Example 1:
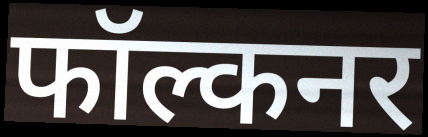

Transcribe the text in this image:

फॉल्कनर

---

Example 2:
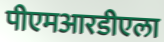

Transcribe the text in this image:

पीएमआरडीएला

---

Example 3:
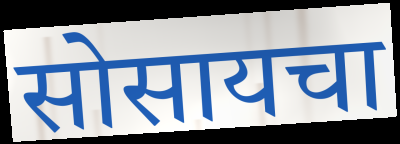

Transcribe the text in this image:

सोसायचा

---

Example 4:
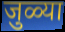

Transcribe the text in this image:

जुळ्या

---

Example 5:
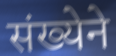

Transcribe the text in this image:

संख्येने